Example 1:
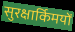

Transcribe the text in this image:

सुरक्षार्किमयों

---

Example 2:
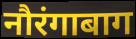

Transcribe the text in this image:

नौरंगाबाग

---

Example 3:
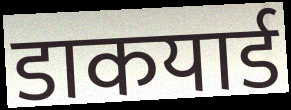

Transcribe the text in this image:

डाकयार्ड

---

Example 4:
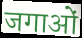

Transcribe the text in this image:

जगाओं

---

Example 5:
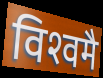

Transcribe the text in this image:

विश्वमै